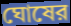
ঘোষের